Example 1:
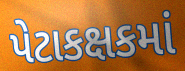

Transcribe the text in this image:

પેટાકક્ષકમાં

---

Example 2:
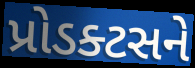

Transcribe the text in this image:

પ્રોડક્ટસને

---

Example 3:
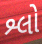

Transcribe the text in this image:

શ્લો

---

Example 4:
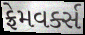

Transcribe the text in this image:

ફ્રેમવર્ક્સ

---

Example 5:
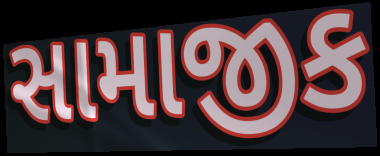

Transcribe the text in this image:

સામાજીક